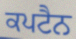
ਕਪਟੈਨ